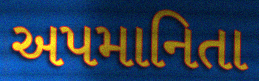
અપમાનિતા